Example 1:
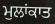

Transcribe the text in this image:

ਮੁਲਾਂਕਾਤ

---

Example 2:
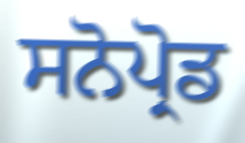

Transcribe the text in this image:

ਸਨੋਪ੍ਰੋਡ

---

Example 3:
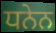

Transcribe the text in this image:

ਧਨੇਨ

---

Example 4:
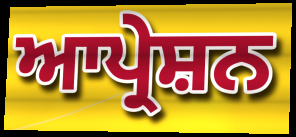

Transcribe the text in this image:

ਆਪ੍ਰੇਸ਼ਨ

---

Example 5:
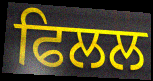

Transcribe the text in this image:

ਫਿਲਲ